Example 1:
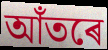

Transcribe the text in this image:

আঁতৰে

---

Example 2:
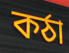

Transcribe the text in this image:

কঠা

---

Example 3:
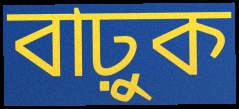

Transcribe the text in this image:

বাঢ়ুক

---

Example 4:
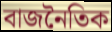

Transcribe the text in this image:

বাজনৈতিক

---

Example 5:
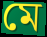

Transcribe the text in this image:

মে